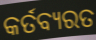
କର୍ତବ୍ୟରତ